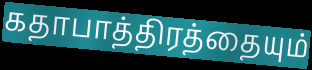
கதாபாத்திரத்தையும்